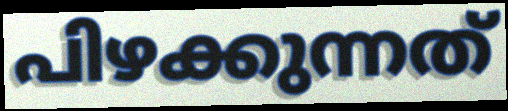
പിഴക്കുന്നത്